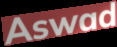
Aswad